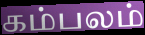
கம்பலம்